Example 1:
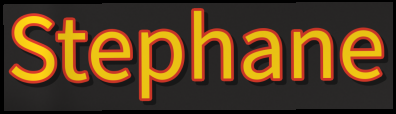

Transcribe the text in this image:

Stephane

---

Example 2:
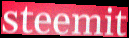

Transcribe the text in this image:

steemit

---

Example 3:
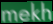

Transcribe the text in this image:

mekh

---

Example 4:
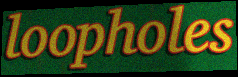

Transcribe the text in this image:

loopholes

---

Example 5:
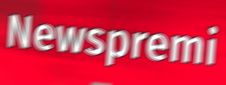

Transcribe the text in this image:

Newspremi